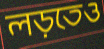
লড়তেও